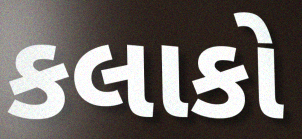
કલાકો